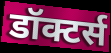
डॉक्टर्स